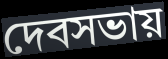
দেবসভায়